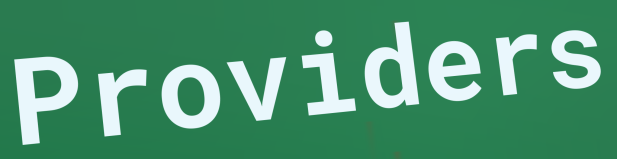
Providers